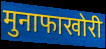
मुनाफाखोरी